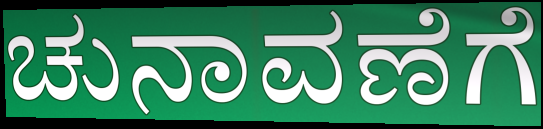
ಚುನಾವಣೆಗೆ